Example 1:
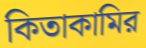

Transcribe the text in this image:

কিতাকামির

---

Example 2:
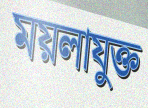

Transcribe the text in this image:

ময়লাযুক্ত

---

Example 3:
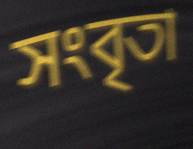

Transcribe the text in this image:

সংবৃতা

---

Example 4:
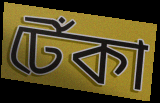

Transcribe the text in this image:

টেঁকা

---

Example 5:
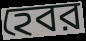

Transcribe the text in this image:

হেবর